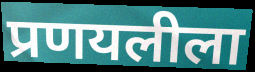
प्रणयलीला